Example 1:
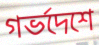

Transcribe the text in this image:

গর্ভদেশে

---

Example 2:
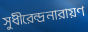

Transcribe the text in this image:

সুধীরেন্দ্রনারায়ণ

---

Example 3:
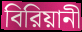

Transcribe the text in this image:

বিরিয়ানী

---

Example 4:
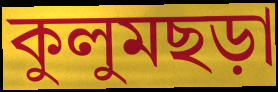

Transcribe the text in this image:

কুলুমছড়া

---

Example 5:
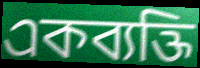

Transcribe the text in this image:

একব্যক্তি